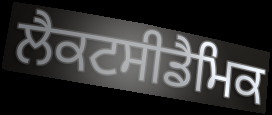
ਲੈਕਟਸੀਡੈਮਿਕ